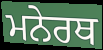
ਮਨੇਰਥ